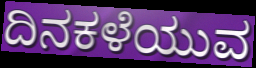
ದಿನಕಳೆಯುವ